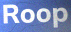
Roop